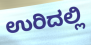
ಉರಿದಲ್ಲಿ